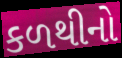
કળથીનો